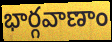
భార్గవాణాం